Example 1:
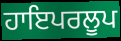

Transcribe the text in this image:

ਹਾਇਪਰਲੂਪ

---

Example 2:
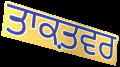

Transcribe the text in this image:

ਤਾਕ਼ਤਵਰ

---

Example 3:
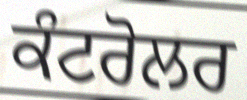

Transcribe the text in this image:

ਕੰਟਰੋਲਰ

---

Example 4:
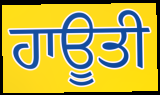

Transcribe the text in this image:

ਹਾਊਤੀ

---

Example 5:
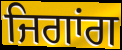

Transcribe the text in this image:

ਜਿਗਾਂਗ